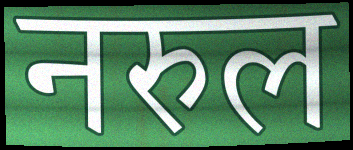
नरुल